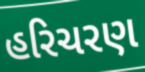
હરિચરણ